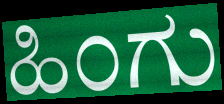
ಹಿಂಗು